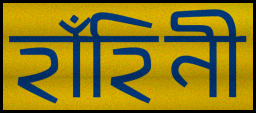
হাঁহিনী